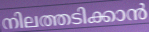
നിലത്തടിക്കാൻ